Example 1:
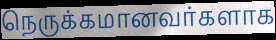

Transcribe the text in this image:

நெருக்கமானவர்களாக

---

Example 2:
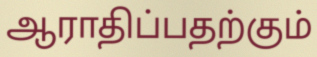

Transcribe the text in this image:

ஆராதிப்பதற்கும்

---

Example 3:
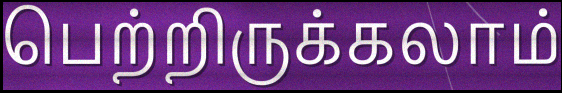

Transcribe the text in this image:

பெற்றிருக்கலாம்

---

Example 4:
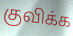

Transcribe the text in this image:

குவிக்க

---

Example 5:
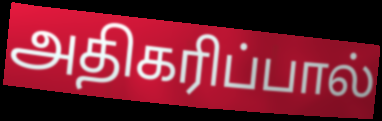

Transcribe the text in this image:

அதிகரிப்பால்